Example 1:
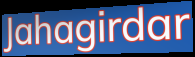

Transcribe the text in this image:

Jahagirdar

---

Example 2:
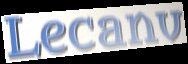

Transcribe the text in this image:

Lecanu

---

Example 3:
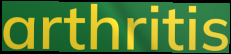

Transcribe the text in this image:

arthritis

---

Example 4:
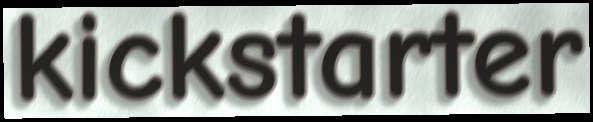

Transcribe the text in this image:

kickstarter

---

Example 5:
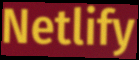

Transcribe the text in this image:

Netlify